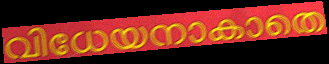
വിധേയനാകാതെ